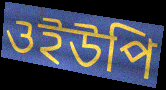
ওইউপি